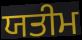
ਯਤੀਮ